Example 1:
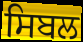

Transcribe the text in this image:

ਸਿਬਲ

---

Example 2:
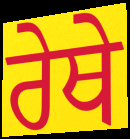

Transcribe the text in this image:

ਰੇਥੇ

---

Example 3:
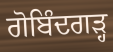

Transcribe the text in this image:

ਗੋਬਿੰਦਗੜ੍ਹ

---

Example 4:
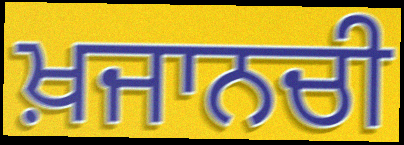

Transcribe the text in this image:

ਖ਼ਜਾਨਚੀ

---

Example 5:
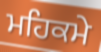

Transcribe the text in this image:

ਮਹਿਕਮੇ